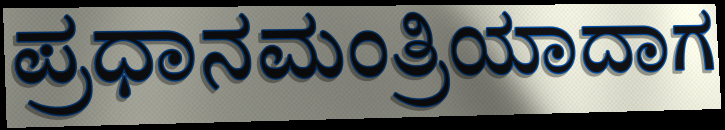
ಪ್ರಧಾನಮಂತ್ರಿಯಾದಾಗ